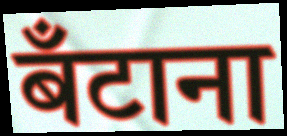
बँटाना